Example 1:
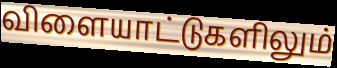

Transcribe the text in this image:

விளையாட்டுகளிலும்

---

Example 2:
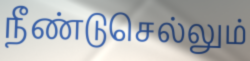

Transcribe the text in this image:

நீண்டுசெல்லும்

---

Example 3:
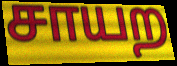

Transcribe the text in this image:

சாயற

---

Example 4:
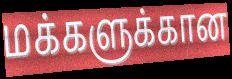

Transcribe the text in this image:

மக்களுக்கான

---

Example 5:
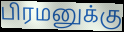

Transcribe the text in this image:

பிரமனுக்கு